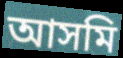
আসমি